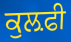
ਕੁਲ਼ਫੀ